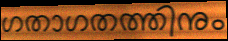
ഗതാഗതത്തിനും